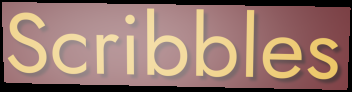
Scribbles